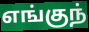
எங்குந்